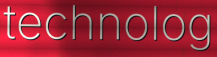
technolog